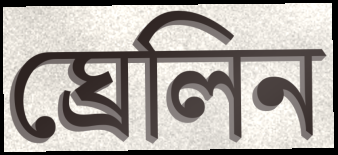
ঘ্ৰেলিন